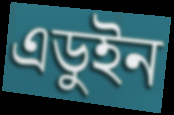
এডুইন